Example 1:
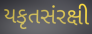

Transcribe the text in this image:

યકૃતસંરક્ષી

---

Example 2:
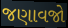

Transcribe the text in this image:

જણાવજો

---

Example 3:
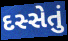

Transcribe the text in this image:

દસ્સેતું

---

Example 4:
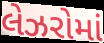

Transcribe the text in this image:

લેઝરોમાં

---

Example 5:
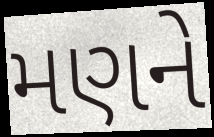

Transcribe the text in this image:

મણને